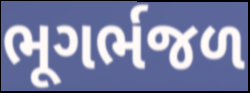
ભૂગર્ભજળ